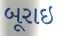
બૂરાઇ